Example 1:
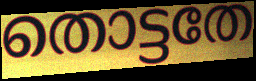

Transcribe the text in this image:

തൊട്ടതേ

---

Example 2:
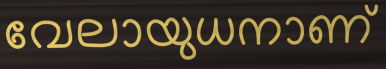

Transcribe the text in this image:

വേലായുധനാണ്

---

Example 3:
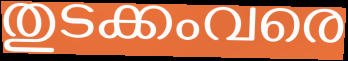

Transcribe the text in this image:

തുടക്കംവരെ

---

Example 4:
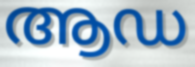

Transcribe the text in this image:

ആഡ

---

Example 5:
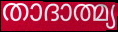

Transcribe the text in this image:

താദാത്മ്യ